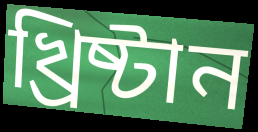
খ্রিষ্টান